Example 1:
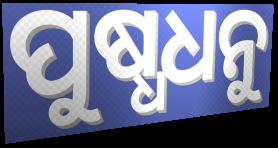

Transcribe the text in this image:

ପୁଷ୍ଧଧନୁ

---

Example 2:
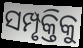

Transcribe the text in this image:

ସମ୍ପୃକ୍ତିକୁ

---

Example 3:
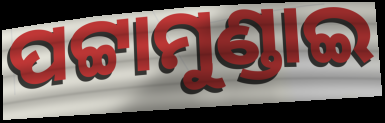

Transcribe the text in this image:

ପଟ୍ଟାମୁଣ୍ଡାଇ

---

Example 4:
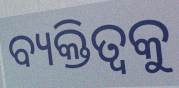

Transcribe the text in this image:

ବ୍ୟକ୍ତିତ୍ୱକୁ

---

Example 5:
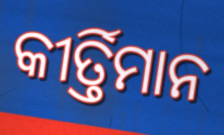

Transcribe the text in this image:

କୀର୍ତ୍ତିମାନ